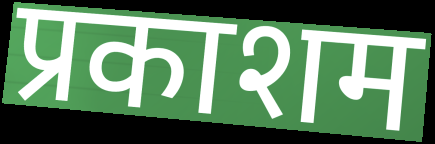
प्रकाशम